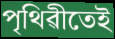
পৃথিৱীতেই